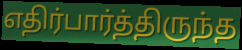
எதிர்பார்த்திருந்த